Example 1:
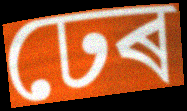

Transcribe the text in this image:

ঢেৰ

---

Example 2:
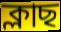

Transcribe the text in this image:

ক্লাছ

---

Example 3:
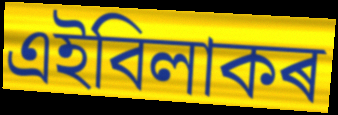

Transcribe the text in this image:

এইবিলাকৰ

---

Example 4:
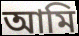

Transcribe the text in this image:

আমি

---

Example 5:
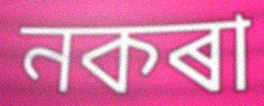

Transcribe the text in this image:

নকৰা